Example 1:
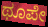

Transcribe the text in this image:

ಥೂಪೇ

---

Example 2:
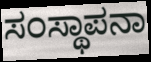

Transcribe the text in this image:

ಸಂಸ್ಥಾಪನಾ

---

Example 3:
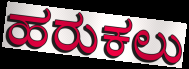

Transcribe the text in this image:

ಹರುಕಲು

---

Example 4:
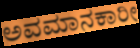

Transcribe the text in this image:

ಅವಮಾನಕಾರೀ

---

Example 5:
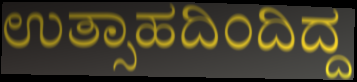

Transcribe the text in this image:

ಉತ್ಸಾಹದಿಂದಿದ್ದ